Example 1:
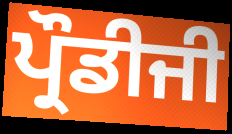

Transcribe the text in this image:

ਪ੍ਰੌਡੀਜੀ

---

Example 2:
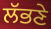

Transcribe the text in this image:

ਲੱਭਣੇ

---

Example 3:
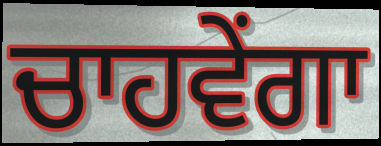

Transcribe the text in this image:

ਚਾਹਵੇਂਗਾ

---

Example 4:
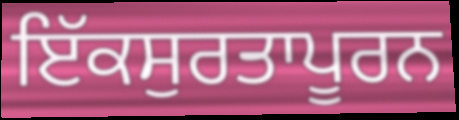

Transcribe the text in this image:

ਇੱਕਸੁਰਤਾਪੂਰਨ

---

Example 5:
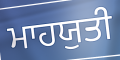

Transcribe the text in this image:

ਮਾਹਯੁਤੀ